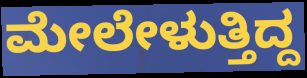
ಮೇಲೇಳುತ್ತಿದ್ದ